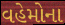
વહેમોના